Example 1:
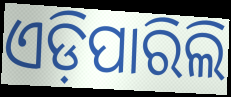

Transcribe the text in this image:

ଏଡ଼ିପାରିଲି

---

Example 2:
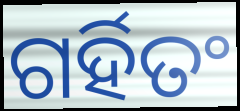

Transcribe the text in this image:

ଗର୍ହିତଂ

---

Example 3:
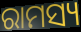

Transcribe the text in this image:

ରାମସ୍ୟ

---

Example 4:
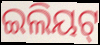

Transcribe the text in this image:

ଇଲିୟଟ୍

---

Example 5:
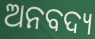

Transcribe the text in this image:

ଅନବଦ୍ୟ